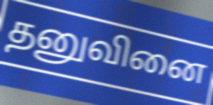
தனுவினை